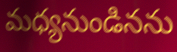
మధ్యనుండినను